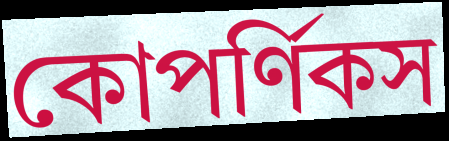
কোপর্ণিকস